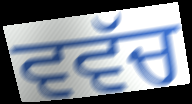
ਵਵੱਚ